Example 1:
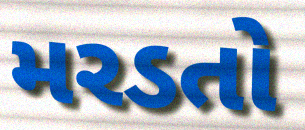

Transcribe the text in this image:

મરડતો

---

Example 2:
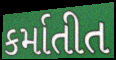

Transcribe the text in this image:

કર્માતીત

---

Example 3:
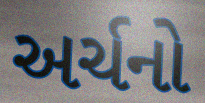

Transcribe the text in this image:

અર્ચનો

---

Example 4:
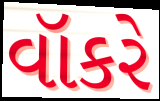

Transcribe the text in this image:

વૉકરે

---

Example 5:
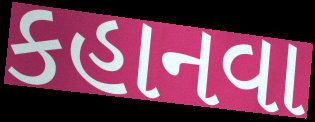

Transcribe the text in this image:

કહાનવા